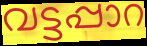
വട്ടപ്പാറ